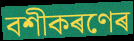
বশীকৰণেৰ